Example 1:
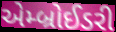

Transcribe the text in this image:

એમ્બ્રોઈડરી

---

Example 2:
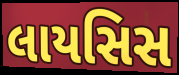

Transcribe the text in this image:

લાયસિસ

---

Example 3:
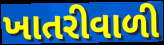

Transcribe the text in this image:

ખાતરીવાળી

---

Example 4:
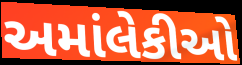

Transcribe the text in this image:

અમાંલેકીઓ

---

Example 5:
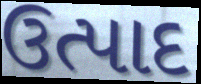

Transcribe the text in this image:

ઉત્પાદ